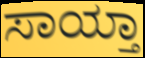
ಸಾಯ್ತಾ